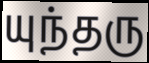
யுந்தரு